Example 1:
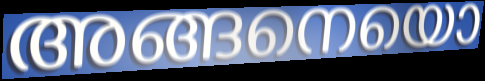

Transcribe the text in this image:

അങ്ങനെയൊ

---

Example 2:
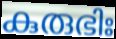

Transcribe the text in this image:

കുരുഭിഃ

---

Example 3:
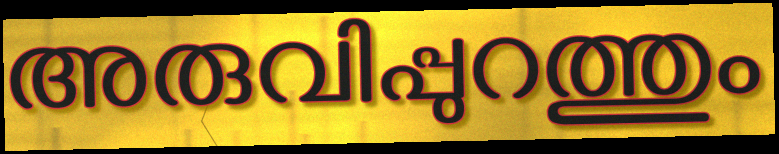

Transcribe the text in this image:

അരുവിപ്പുറത്തും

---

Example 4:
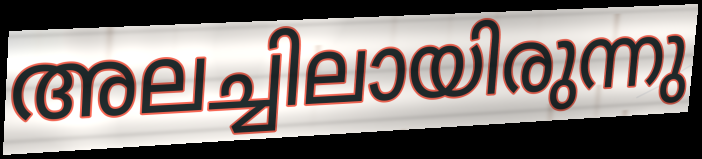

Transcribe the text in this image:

അലച്ചിലായിരുന്നു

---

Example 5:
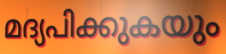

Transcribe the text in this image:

മദ്യപിക്കുകയും